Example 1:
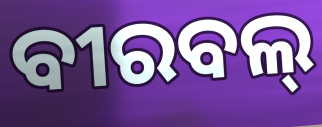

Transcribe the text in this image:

ବୀରବଲ୍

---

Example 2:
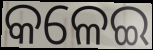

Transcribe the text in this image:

କଳେଇ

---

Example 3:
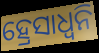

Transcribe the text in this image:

ହ୍ରେସାଧ୍ୱନି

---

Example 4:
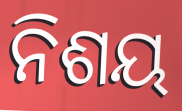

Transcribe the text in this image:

ନିଶୟ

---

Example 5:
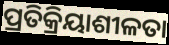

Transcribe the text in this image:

ପ୍ରତିକ୍ରିୟାଶୀଳତା